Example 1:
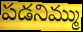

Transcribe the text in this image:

పడనిమ్ము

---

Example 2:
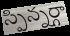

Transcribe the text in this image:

స్పిన్నర్గా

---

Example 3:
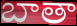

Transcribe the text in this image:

బాతా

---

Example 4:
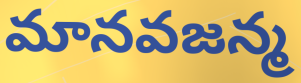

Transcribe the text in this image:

మానవజన్మ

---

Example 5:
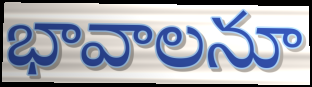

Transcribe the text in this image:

భావాలనూ